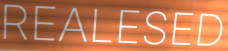
REALESED